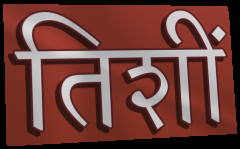
तिशीं